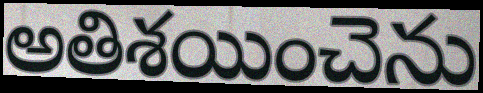
అతిశయించెను